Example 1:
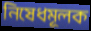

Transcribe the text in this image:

নিষেধমূলক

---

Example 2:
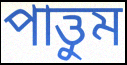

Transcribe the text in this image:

পাত্তুম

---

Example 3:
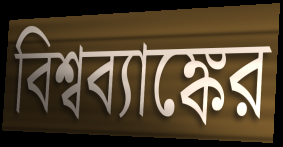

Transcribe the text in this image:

বিশ্বব্যাঙ্কের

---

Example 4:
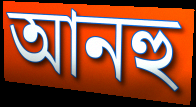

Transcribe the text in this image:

আনহু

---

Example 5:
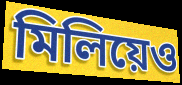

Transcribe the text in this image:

মিলিয়েও